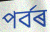
পৰ্বৰ